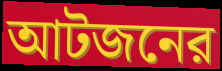
আটজনের